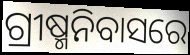
ଗ୍ରୀଷ୍ମନିବାସରେ